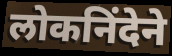
लोकनिंदेने